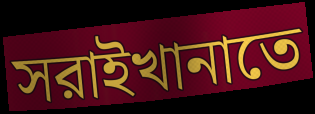
সরাইখানাতে